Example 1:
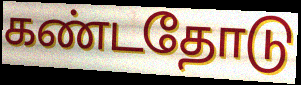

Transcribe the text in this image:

கண்டதோடு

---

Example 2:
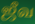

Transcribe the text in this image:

ஜீவ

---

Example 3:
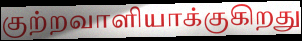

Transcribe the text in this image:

குற்றவாளியாக்குகிறது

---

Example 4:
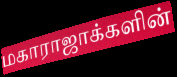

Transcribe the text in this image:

மகாராஜாக்களின்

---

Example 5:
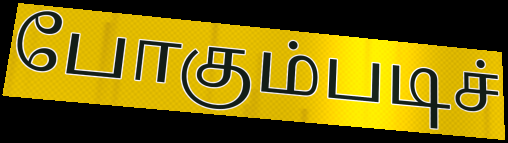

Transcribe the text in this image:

போகும்படிச்